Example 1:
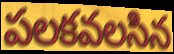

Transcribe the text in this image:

పలకవలసిన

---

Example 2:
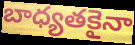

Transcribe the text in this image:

బాధ్యతకైనా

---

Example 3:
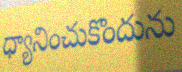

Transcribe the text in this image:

ధ్యానించుకొందును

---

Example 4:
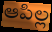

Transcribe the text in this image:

ఆపిల్ల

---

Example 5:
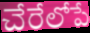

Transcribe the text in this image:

చేరేలోపే